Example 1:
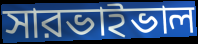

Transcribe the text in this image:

সারভাইভাল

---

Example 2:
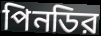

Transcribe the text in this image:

পিনডির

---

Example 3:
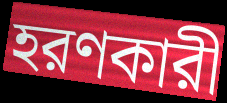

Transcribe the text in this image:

হরণকারী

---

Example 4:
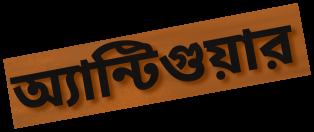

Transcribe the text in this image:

অ্যান্টিগুয়ার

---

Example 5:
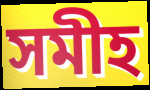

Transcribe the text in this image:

সমীহ